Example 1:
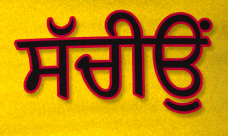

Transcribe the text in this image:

ਸੱਚੀਉਂ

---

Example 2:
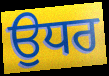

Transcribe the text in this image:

ਉਧਰ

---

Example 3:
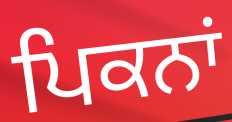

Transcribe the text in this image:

ਪਿਕਨਾਂ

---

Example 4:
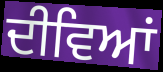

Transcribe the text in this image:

ਦੀਵਿਆਂ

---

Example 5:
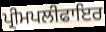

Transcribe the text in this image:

ਪ੍ਰੀਮਪਲੀਫਾਇਰ